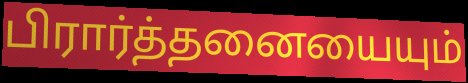
பிரார்த்தனையையும்